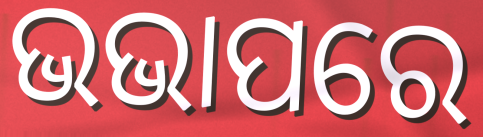
ଭଭାପରେ